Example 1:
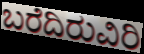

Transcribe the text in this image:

ಬರೆದಿರುವಿರಿ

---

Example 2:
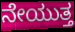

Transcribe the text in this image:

ನೇಯುತ್ತ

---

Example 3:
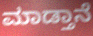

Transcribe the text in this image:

ಮಾಡ್ತಾನೆ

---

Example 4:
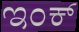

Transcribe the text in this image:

ಇಂಕ್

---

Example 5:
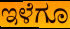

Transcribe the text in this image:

ಇಳೆಗೂ